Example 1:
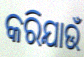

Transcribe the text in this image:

କରିଯାଉଁ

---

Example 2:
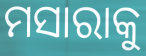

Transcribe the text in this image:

ମସାରାକୁ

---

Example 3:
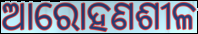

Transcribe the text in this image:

ଆରୋହଣଶୀଳ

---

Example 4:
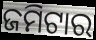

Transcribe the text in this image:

ଜମିଟାର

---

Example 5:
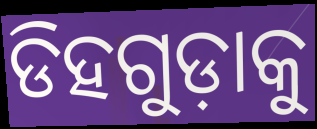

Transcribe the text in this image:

ଡିହଗୁଡ଼ାକୁ